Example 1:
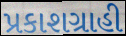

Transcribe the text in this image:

પ્રકાશગ્રાહી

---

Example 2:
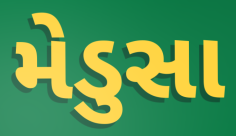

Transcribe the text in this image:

મેડુસા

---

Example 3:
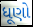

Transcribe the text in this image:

ધૂણો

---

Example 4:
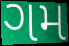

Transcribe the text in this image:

ગમ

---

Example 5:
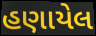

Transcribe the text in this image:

હણાયેલ